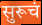
सुरूचं